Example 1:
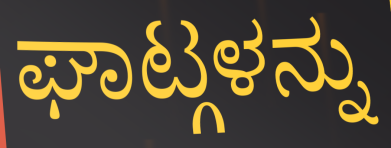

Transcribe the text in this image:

ಘಾಟ್ಗಳನ್ನು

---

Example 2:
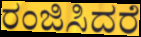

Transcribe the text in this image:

ರಂಜಿಸಿದರೆ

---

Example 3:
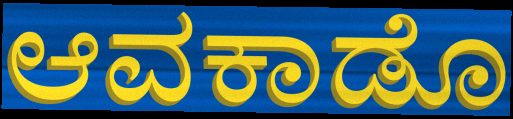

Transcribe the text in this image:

ಆವಕಾಡೊ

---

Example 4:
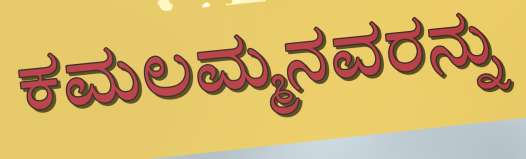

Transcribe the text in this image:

ಕಮಲಮ್ಮನವರನ್ನು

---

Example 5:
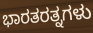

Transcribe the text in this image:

ಭಾರತರತ್ನಗಳು